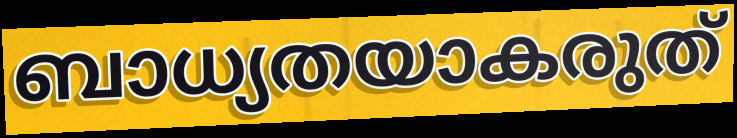
ബാധ്യതയാകരുത്